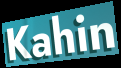
Kahin